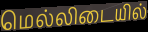
மெல்லிடையில்